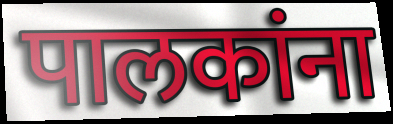
पालकांना